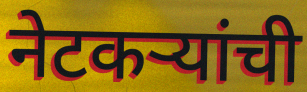
नेटकऱ्यांची